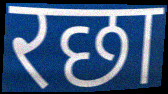
रछा